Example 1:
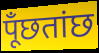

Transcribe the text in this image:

पूँछतांछ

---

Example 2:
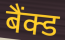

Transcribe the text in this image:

बैंक्ड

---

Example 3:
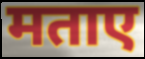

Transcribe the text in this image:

मताए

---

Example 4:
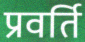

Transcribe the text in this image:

प्रवर्ति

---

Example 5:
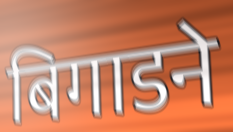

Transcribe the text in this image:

बिगाडने